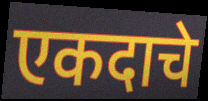
एकदाचे